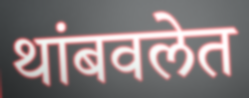
थांबवलेत